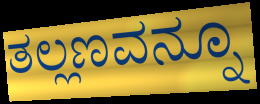
ತಲ್ಲಣವನ್ನೂ